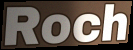
Roch